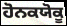
ਹੋਨਕਯੋਕੂ